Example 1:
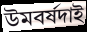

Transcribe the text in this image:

উমবৰ্ষদাই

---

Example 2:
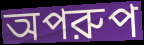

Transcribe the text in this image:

অপৰুপ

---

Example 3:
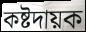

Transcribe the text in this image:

কষ্টদায়ক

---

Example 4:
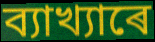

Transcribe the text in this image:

ব্যাখ্যাৰে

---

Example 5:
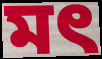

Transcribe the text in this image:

মৎ